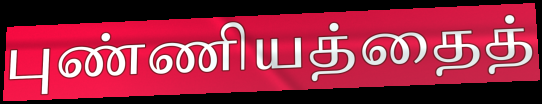
புண்ணியத்தைத்